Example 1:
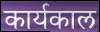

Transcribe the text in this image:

कार्यकाल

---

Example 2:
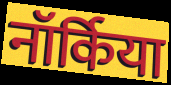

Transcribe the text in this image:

नॉर्किया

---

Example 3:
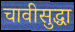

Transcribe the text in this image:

चावीसुद्धा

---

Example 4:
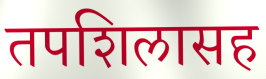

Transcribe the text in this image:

तपशिलासह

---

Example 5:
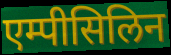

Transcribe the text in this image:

एम्पीसिलिन